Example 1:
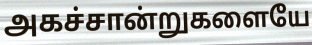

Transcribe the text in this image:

அகச்சான்றுகளையே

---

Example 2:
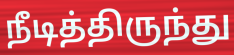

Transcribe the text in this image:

நீடித்திருந்து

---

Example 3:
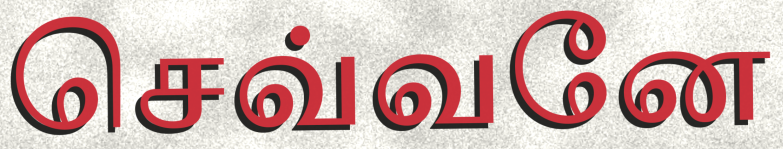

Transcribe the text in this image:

செவ்வனே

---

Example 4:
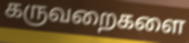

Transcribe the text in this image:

கருவறைகளை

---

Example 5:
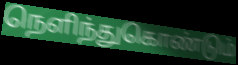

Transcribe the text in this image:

நெளிந்துகொண்டும்